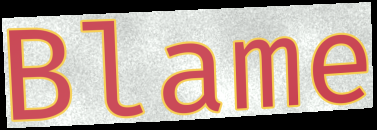
Blame